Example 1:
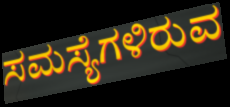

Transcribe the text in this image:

ಸಮಸ್ಯೆಗಳಿರುವ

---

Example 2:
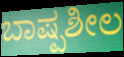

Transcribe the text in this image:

ಬಾಷ್ಪಶೀಲ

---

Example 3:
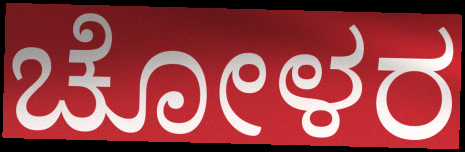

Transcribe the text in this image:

ಚೋಳರ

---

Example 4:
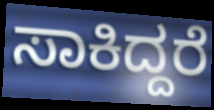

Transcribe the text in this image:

ಸಾಕಿದ್ದರೆ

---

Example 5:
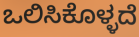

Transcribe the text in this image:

ಒಲಿಸಿಕೊಳ್ಳದೆ